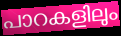
പാറകളിലും